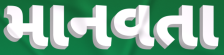
માનવતા